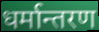
धर्मान्तरण